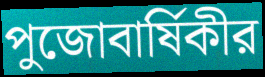
পুজোবার্ষিকীর